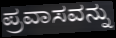
ಪ್ರವಾಸವನ್ನು